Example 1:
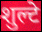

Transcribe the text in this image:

शुल्टे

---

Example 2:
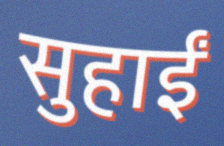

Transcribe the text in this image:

सुहाईं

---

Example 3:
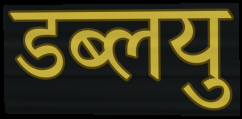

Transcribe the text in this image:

डब्लयु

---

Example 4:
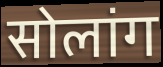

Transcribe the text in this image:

सोलांग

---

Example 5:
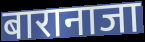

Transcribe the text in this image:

बारानाजा